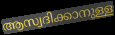
ആസ്വദിക്കാനുള്ള